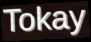
Tokay